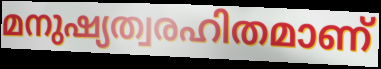
മനുഷ്യത്വരഹിതമാണ്